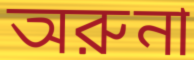
অরুনা